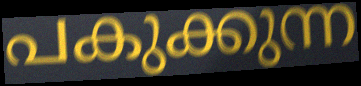
പകുക്കുന്ന